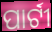
ପାର୍ଟୀ